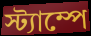
স্ট্যাম্পে